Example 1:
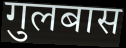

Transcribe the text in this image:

गुलबास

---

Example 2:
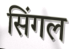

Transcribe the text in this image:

सिंगल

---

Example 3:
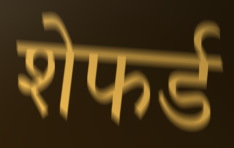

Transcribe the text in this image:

शेफर्ड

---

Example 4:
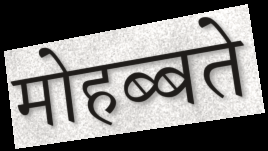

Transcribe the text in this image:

मोहब्बते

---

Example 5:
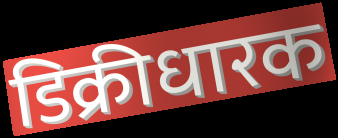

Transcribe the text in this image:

डिक्रीधारक